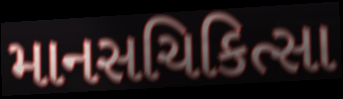
માનસચિકિત્સા